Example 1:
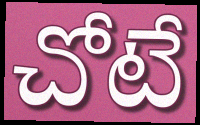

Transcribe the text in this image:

చోటే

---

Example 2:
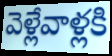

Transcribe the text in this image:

వెళ్లేవాళ్లకి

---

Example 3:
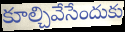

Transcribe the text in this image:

కూల్చివేసేందుకు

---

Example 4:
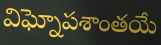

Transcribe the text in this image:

విఘ్నోపశాంతయే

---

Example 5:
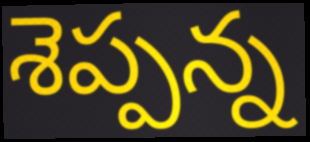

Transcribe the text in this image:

శెప్పన్న